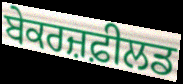
ਬੇਕਰਜ਼ਫ਼ੀਲਡ